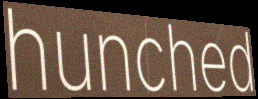
hunched